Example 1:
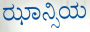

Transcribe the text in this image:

ಝಾನ್ಸಿಯ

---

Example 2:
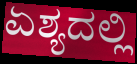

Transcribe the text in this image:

ಏಶ್ಯದಲ್ಲಿ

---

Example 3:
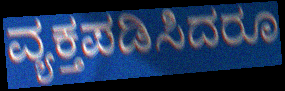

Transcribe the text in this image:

ವ್ಯಕ್ತಪಡಿಸಿದರೂ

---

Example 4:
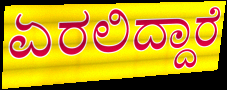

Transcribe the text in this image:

ಏರಲಿದ್ದಾರೆ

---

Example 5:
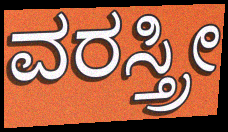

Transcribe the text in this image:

ವರಸ್ತ್ರೀ